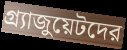
গ্র্যাজুয়েটদের